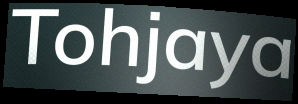
Tohjaya